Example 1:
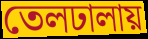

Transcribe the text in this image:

তেলঢালায়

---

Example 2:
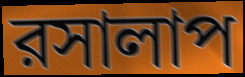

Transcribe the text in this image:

রসালাপ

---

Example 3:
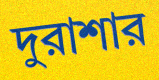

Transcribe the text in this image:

দুরাশার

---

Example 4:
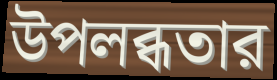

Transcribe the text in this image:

উপলব্ধতার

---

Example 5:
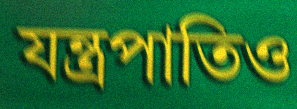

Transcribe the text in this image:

যন্ত্রপাতিও